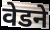
वेडने